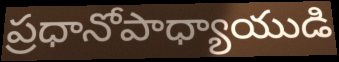
ప్రధానోపాధ్యాయుడి